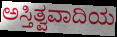
ಅಸ್ತಿತ್ವವಾದಿಯ